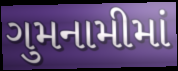
ગુમનામીમાં